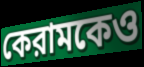
কেরামকেও